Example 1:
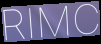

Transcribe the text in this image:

RIMC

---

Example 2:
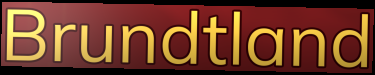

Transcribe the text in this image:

Brundtland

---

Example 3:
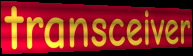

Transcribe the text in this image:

transceiver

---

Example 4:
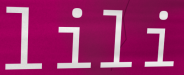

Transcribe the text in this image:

lili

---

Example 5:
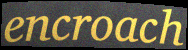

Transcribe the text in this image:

encroach